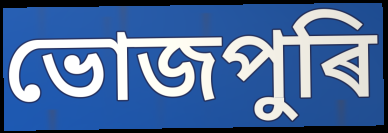
ভোজপুৰি